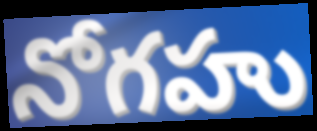
నోగహు